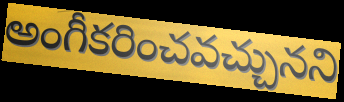
అంగీకరించవచ్చునని